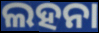
ଲହନା